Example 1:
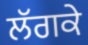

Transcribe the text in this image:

ਲੱਗਕੇ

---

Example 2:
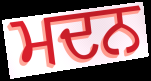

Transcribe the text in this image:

ਮਦਨ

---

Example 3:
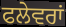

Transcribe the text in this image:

ਫਲੇਵਰਾਂ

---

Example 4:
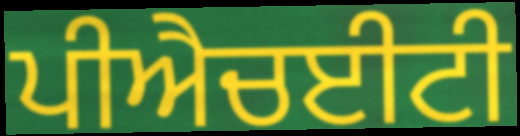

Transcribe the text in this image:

ਪੀਐਚਈਟੀ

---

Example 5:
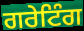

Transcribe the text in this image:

ਗਰੇਟਿੰਗ